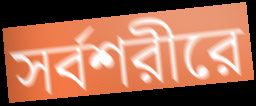
সর্বশরীরে